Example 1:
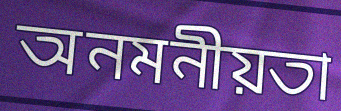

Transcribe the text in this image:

অনমনীয়তা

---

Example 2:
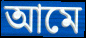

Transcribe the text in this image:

আমে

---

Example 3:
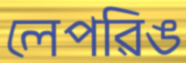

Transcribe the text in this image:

লেপৱিঙ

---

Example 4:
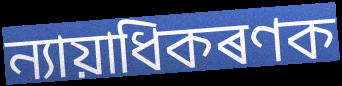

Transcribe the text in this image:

ন্যায়াধিকৰণক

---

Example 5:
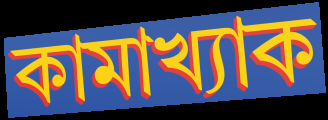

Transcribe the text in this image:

কামাখ্যাক